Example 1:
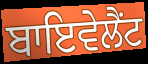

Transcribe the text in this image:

ਬਾਇਵੇਲੈਂਟ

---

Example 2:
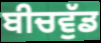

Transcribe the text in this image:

ਬੀਚਵੁੱਡ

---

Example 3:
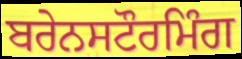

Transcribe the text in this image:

ਬਰੇਨਸਟੌਰਮਿੰਗ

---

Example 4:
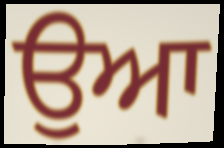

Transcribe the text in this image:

ਉਆ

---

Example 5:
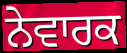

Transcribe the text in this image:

ਨੇਵਾਰਕ